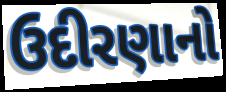
ઉદીરણાનો